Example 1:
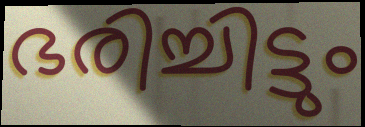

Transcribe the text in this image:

ഭരിച്ചിട്ടും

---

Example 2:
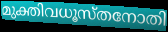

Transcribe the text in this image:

മുക്തിവധൂസ്തനോതി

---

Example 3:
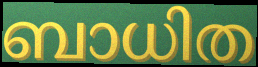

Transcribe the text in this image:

ബാധിത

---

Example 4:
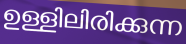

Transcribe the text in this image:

ഉള്ളിലിരിക്കുന്ന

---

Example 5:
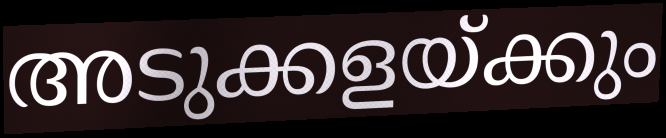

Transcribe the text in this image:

അടുക്കളയ്ക്കും